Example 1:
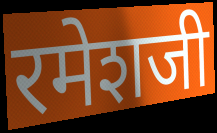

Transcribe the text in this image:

रमेशजी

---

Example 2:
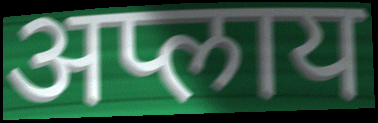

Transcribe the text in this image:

अप्लाय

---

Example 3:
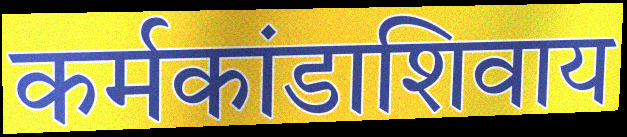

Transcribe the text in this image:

कर्मकांडाशिवाय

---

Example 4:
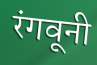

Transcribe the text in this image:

रंगवूनी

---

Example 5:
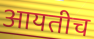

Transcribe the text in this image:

आयतीच